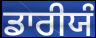
ਡਾਰੀਯੰ